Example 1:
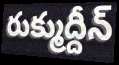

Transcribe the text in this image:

రుక్ముద్దీన్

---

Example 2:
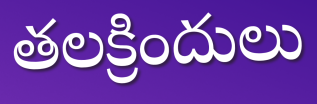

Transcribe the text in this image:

తలక్రిందులు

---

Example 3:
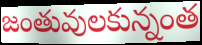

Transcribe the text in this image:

జంతువులకున్నంత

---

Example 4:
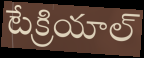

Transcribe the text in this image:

టేక్రియాల్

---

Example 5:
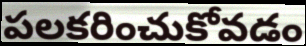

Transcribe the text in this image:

పలకరించుకోవడం